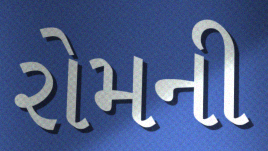
રોમની